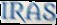
IRAS